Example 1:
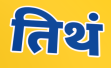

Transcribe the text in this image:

तिथं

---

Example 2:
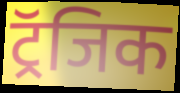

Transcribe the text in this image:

ट्रॅजिक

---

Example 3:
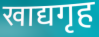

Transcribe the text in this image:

खाद्यगृह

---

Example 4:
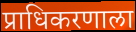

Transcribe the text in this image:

प्राधिकरणाला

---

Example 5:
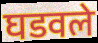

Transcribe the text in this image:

घडवले